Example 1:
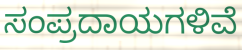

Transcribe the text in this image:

ಸಂಪ್ರದಾಯಗಳಿವೆ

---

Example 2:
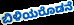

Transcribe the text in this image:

ಬಿಳಿಯರೊಡನೆ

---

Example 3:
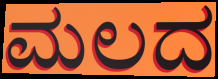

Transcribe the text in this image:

ಮಲದ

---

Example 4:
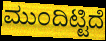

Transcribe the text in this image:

ಮುಂದಿಟ್ಟಿದೆ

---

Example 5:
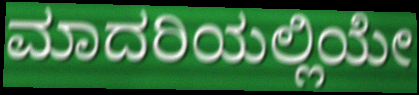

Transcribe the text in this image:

ಮಾದರಿಯಲ್ಲಿಯೇ